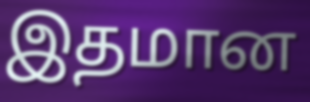
இதமான